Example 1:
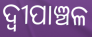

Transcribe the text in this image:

ଦ୍ୱୀପାଞ୍ଚଳ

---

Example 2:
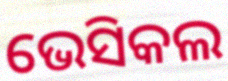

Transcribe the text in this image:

ଭେସିକଲ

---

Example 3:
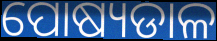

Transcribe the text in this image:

ପୋଷ୍ୟଡାଳ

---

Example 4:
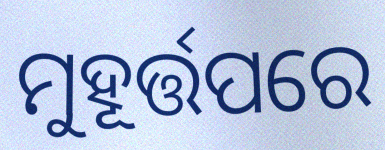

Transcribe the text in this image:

ମୁହୂର୍ତ୍ତପରେ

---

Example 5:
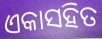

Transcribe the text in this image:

ଏକାସହିତ